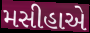
મસીહાએ